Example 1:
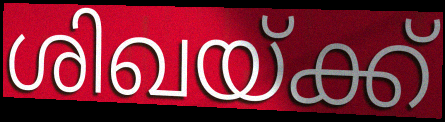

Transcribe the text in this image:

ശിഖയ്ക്ക്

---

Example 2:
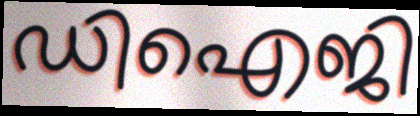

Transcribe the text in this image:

ഡിഐജി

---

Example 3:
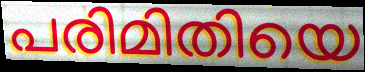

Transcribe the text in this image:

പരിമിതിയെ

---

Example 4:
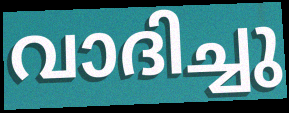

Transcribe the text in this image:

വാദിച്ചു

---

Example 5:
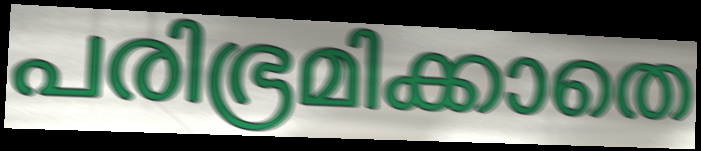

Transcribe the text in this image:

പരിഭ്രമിക്കാതെ